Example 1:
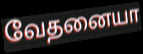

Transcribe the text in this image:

வேதனையா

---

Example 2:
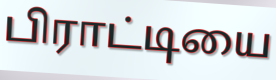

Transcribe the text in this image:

பிராட்டியை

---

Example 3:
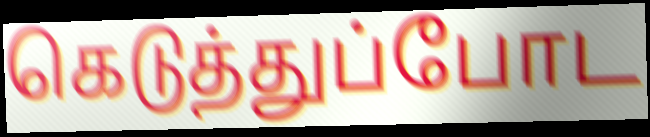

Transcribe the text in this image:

கெடுத்துப்போட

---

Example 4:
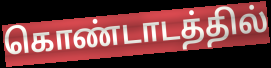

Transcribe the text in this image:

கொண்டாடத்தில்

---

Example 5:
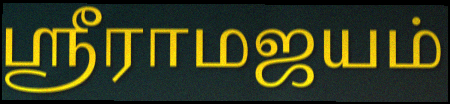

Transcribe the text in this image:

ஸ்ரீராமஜயம்